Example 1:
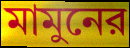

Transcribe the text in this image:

মামুনের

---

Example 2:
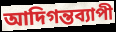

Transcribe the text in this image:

আদিগন্তব্যাপী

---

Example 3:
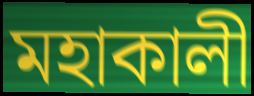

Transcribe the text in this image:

মহাকালী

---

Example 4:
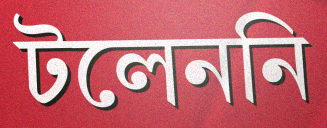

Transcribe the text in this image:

টলেননি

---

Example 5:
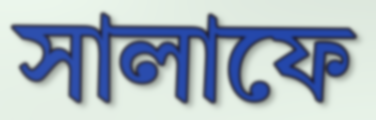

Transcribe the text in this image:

সালাফে